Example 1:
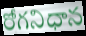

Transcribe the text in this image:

రోగనిధాన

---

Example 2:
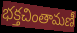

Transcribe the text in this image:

భక్తచింతామణీ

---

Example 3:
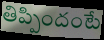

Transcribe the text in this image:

తిప్పిందంటే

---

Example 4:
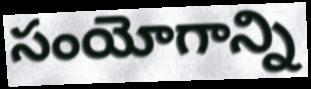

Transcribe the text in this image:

సంయోగాన్ని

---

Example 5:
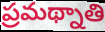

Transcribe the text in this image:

ప్రమథ్నాతి